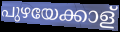
പുഴയേക്കാള്